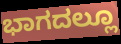
ಭಾಗದಲ್ಲೂ